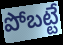
పోబట్టే